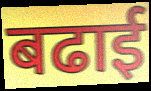
बढाई